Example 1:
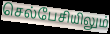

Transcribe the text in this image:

செல்பேசியிலும்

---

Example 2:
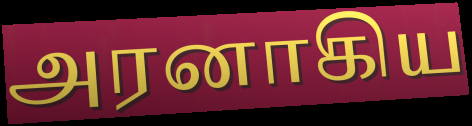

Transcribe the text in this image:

அரனாகிய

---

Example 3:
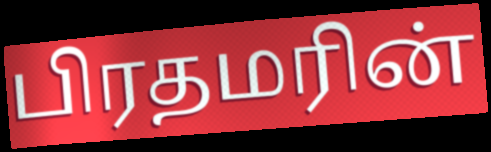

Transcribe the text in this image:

பிரதமரின்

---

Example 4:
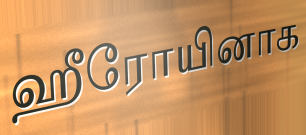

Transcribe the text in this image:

ஹீரோயினாக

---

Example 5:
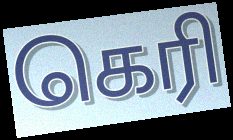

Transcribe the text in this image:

கெரி